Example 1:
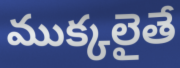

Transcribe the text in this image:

ముక్కలైతే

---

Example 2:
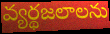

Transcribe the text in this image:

వ్యర్థజలాలను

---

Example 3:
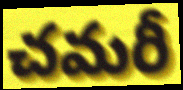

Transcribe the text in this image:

చమరీ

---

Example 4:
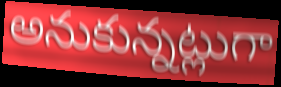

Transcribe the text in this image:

అనుకున్నట్లుగా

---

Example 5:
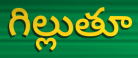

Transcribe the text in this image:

గిల్లుతూ